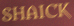
SHAICK